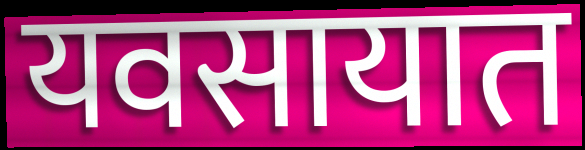
यवसायात